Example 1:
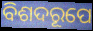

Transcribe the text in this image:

ବିଶଦରୂପେ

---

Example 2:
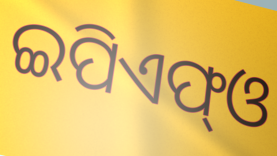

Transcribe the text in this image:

ଇପିଏଫ୍ଓ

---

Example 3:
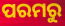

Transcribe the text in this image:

ପରମରୁ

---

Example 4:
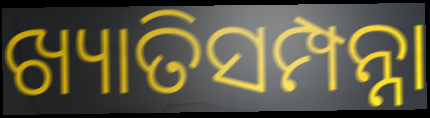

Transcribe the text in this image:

ଖ୍ୟାତିସମ୍ପନ୍ନା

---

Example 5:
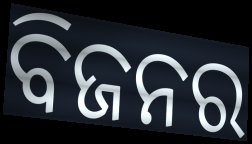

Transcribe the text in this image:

ବିଜନର